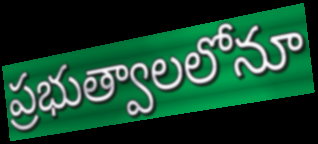
ప్రభుత్వాలలోనూ